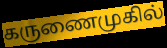
கருணைமுகில்